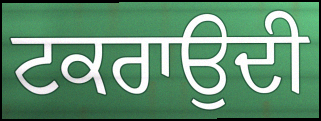
ਟਕਰਾਉਦੀ